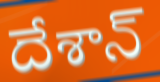
దేశాన్